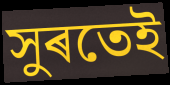
সুৰতেই